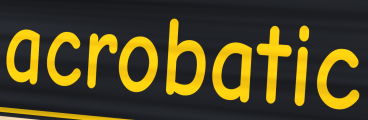
acrobatic